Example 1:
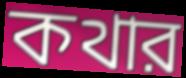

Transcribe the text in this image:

কথার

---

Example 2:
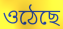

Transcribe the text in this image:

ওঠেছে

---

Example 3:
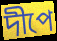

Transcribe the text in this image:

দীপে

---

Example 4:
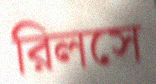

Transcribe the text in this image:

রিলসে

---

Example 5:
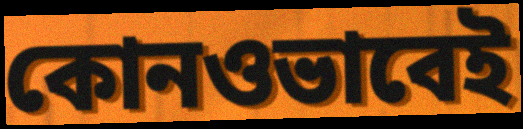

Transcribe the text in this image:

কোনওভাবেই